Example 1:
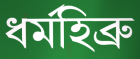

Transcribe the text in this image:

ধৰ্মহিব্ৰু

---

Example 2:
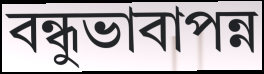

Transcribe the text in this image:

বন্ধুভাবাপন্ন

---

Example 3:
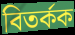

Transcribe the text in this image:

বিতৰ্কক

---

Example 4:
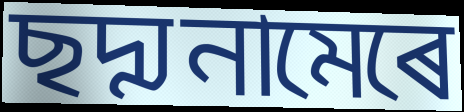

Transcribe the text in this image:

ছদ্মনামেৰে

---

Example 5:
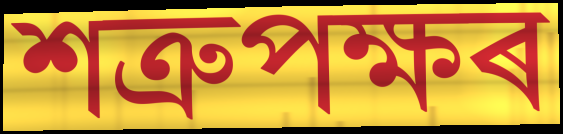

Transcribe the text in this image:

শত্ৰুপক্ষৰ